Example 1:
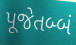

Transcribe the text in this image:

પૂજેતબ્બં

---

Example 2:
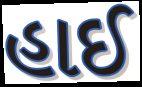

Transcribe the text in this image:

હાઈ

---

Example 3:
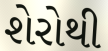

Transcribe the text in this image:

શેરોથી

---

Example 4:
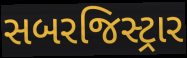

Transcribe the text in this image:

સબરજિસ્ટ્રાર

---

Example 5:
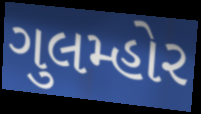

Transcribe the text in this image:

ગુલમ્હોર